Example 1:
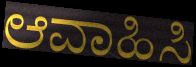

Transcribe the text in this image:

ಆವಾಹಿಸಿ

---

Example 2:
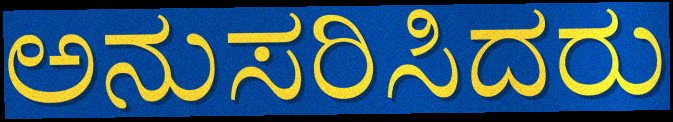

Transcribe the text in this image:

ಅನುಸರಿಸಿದರು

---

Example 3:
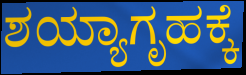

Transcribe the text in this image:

ಶಯ್ಯಾಗೃಹಕ್ಕೆ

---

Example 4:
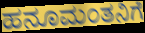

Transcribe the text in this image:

ಹನೂಮಂತನಿಗೆ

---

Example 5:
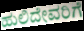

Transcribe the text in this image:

ಹುಲಿದೇವರಿಗೆ